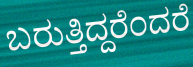
ಬರುತ್ತಿದ್ದರೆಂದರೆ